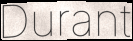
Durant